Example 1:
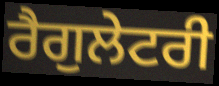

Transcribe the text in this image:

ਰੈਗੁਲੇਟਰੀ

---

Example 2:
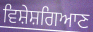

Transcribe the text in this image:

ਵਿਸ਼ੇਸ਼ਗਿਆਣ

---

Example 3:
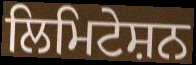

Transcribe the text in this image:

ਲਿਮਿਟੇਸ਼ਨ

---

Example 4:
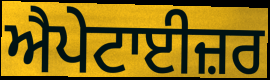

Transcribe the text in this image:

ਐਪੇਟਾਈਜ਼ਰ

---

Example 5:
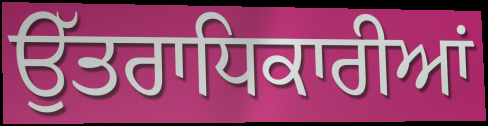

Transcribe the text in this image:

ਉੱਤਰਾਧਿਕਾਰੀਆਂ